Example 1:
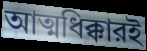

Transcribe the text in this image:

আত্মধিক্কারই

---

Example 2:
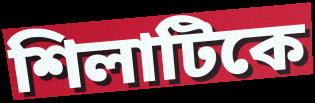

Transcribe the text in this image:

শিলাটিকে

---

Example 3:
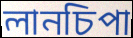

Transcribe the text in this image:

লানচিপা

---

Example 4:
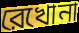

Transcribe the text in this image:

রেখোনা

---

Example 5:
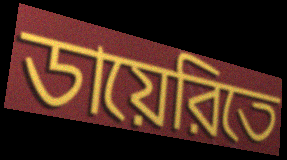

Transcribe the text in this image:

ডায়েরিতে